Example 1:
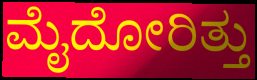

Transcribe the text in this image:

ಮೈದೋರಿತ್ತು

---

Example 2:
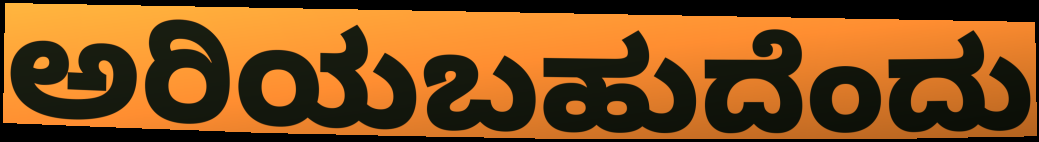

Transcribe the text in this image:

ಅರಿಯಬಹುದೆಂದು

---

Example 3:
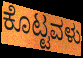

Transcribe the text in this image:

ಕೊಟ್ಟವಳು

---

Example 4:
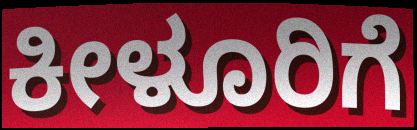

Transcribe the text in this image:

ಕೀಳೂರಿಗೆ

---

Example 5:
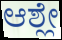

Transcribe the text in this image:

ಆಶ್ಲೇ